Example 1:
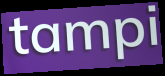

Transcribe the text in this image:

tampi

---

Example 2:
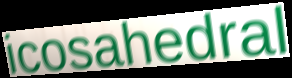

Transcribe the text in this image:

icosahedral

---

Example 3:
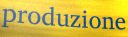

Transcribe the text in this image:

produzione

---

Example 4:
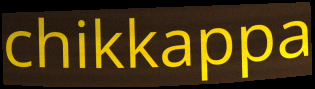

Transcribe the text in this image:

chikkappa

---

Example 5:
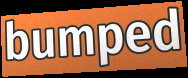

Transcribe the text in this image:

bumped